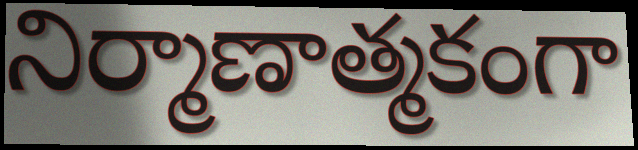
నిర్మాణాత్మకంగా